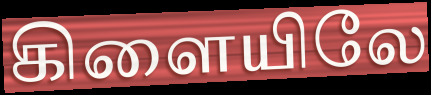
கிளையிலே